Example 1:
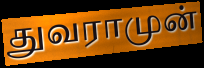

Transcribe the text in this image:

துவராமுன்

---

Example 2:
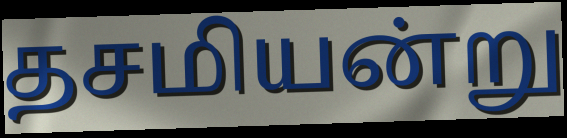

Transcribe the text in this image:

தசமியன்று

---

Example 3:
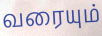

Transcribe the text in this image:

வரையும்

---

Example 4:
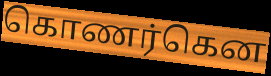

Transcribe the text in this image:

கொணர்கென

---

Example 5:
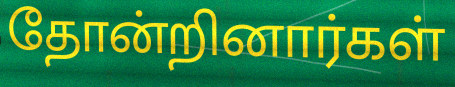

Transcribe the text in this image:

தோன்றினார்கள்